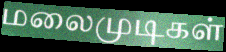
மலைமுடிகள்